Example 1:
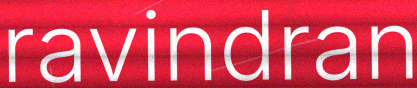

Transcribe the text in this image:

ravindran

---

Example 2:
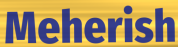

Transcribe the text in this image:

Meherish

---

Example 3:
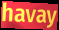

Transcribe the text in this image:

havay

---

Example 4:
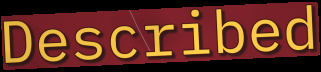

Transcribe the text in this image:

Described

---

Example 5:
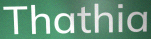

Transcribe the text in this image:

Thathia